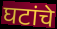
घटांचे